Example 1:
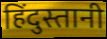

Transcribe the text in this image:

हिंदुस्तानी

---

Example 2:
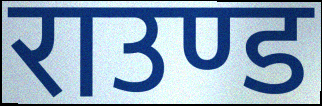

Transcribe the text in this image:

राउण्ड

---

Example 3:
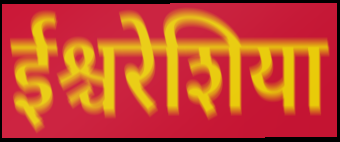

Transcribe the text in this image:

ईश्चरेशिया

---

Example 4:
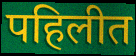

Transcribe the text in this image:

पहिलीत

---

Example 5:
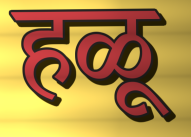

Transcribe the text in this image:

हळू